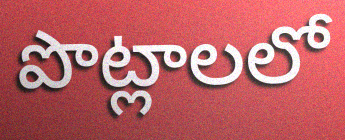
పొట్లాలలో